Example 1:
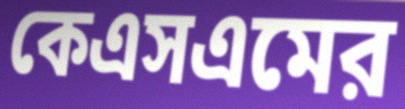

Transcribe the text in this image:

কেএসএমের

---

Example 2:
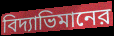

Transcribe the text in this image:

বিদ্যাভিমানের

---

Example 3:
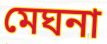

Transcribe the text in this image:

মেঘনা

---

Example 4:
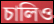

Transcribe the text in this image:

চালিও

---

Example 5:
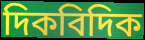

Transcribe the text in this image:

দিকবিদিক